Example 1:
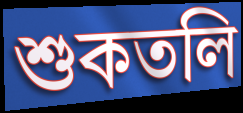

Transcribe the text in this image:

শুকতলি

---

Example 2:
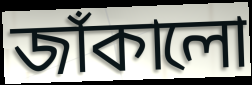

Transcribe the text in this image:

জাঁকালো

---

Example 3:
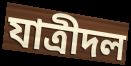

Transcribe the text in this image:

যাত্রীদল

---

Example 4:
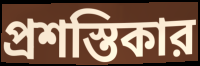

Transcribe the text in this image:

প্রশস্তিকার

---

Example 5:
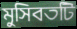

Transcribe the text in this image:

মুসিবতটি